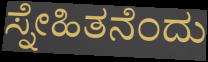
ಸ್ನೇಹಿತನೆಂದು